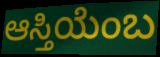
ಆಸ್ತಿಯೆಂಬ